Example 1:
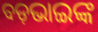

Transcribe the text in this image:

ବଡ଼ଭାଇଙ୍କ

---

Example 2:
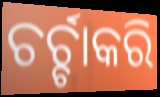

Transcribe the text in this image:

ଚର୍ଚ୍ଚାକରି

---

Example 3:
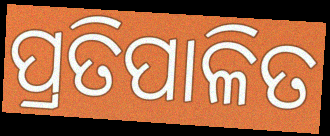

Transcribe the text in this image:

ପ୍ରତିପାଳିତ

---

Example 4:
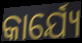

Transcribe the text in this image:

କାର୍ଯ୍ୟେ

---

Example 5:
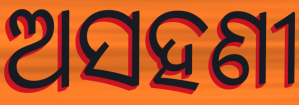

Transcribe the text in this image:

ଅସହଣୀ